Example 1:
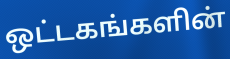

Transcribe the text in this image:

ஒட்டகங்களின்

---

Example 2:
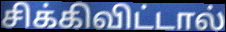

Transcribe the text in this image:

சிக்கிவிட்டால்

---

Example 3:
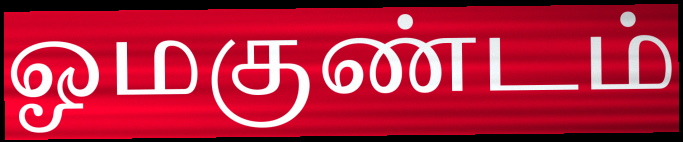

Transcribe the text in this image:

ஓமகுண்டம்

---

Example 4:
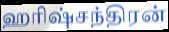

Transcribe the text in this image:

ஹரிஷ்சந்திரன்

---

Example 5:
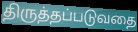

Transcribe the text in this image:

திருத்தப்படுவதை